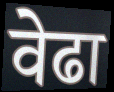
वेढा